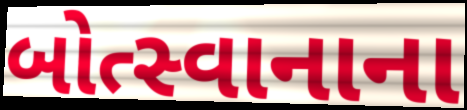
બોત્સ્વાનાના